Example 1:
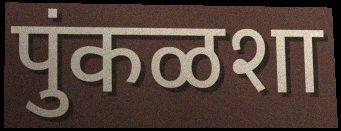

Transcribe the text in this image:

पुंकळशा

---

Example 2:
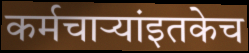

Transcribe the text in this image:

कर्मचाऱ्यांइतकेच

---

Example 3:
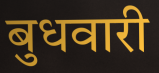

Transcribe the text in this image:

बुधवारी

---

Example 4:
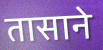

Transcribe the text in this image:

तासाने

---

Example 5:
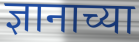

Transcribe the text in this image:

ज्ञानाच्या